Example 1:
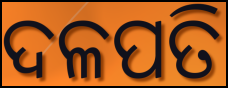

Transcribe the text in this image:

ଦଳପତି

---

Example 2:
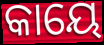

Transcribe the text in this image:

କାୟେ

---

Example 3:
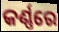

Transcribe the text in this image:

କର୍ଣ୍ଣରେ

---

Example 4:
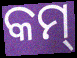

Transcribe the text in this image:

କମ୍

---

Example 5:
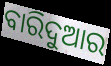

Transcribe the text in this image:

ବାରିଦୁଆର